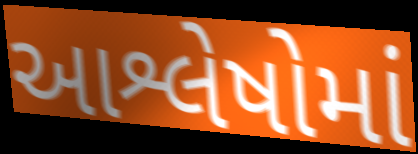
આશ્લેષોમાં